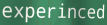
experinced